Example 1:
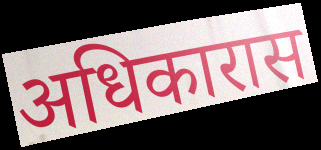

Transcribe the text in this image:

अधिकारास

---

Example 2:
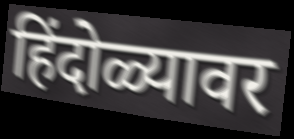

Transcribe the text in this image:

हिंदोळ्यावर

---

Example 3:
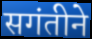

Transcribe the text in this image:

सगंतीने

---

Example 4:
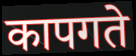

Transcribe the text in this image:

कापगते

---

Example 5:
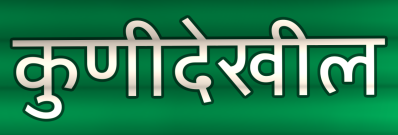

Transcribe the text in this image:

कुणीदेखील